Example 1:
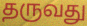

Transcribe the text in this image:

தருவது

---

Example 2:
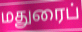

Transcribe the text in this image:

மதுரைப்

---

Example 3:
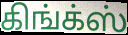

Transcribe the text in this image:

கிங்க்ஸ்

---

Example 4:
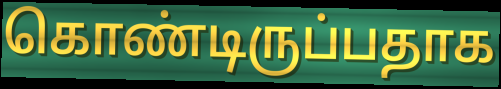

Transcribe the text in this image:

கொண்டிருப்பதாக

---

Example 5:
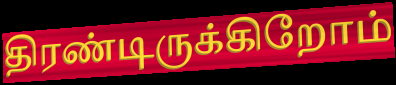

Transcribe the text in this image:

திரண்டிருக்கிறோம்